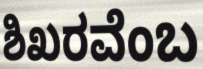
ಶಿಖರವೆಂಬ